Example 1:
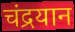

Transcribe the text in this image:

चंद्रयान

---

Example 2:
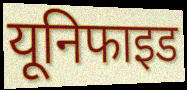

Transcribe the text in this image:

यूनिफाइड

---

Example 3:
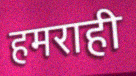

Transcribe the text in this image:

हमराही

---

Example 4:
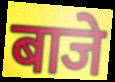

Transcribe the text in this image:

बाजे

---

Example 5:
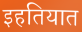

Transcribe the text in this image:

इहतियात